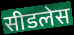
सीडलेस